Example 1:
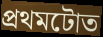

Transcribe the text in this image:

প্ৰথমটোত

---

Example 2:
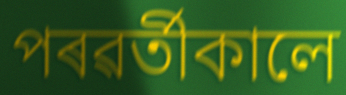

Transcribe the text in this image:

পৰৱৰ্তীকালে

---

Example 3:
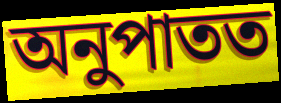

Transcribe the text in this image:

অনুপাতত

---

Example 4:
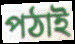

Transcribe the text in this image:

পঠাই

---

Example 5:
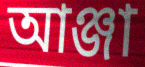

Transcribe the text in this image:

আঞ্জা